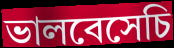
ভালবেসেচি